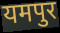
यमपुर